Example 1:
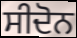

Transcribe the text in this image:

ਸੀਦੋਨ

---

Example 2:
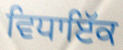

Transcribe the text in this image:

ਵਿਧਾਇੱਕ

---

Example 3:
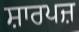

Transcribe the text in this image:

ਸ਼ਾਰਪਜ਼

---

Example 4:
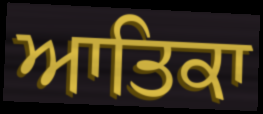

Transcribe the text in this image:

ਆਤਿਕਾ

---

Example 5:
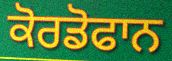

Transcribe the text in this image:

ਕੋਰਡੋਫਾਨ